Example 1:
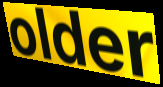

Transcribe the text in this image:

older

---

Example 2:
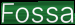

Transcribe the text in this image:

Fossa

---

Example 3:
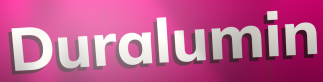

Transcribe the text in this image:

Duralumin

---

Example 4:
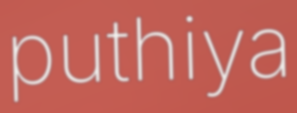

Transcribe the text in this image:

puthiya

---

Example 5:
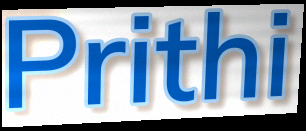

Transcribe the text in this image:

Prithi